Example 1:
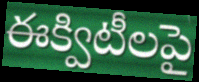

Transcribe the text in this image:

ఈక్విటీలపై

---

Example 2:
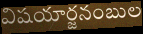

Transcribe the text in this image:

విషయార్జనంబుల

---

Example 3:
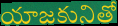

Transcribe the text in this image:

యాజకునితో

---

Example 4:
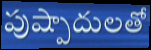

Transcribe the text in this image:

పుష్పాదులతో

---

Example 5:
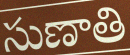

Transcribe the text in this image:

సుణాతి